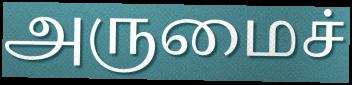
அருமைச்